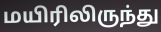
மயிரிலிருந்து